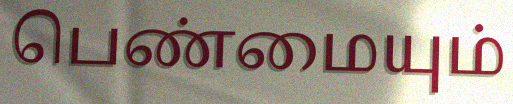
பெண்மையும்